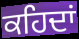
ਕਹਿਦਾਂ